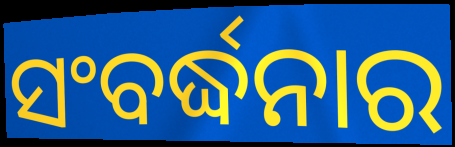
ସଂବର୍ଦ୍ଧନାର